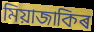
মিয়াজাকিৰ